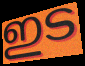
ഇട